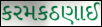
કરમકઠણાઈ